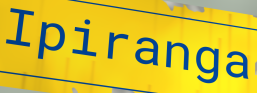
Ipiranga